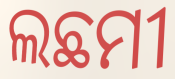
ଲଛମୀ